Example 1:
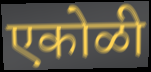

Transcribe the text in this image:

एकोळी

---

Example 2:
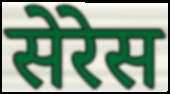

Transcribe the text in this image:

सेरेस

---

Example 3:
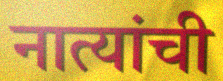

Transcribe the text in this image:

नात्यांची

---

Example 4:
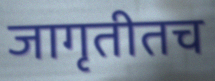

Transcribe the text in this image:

जागृतीतच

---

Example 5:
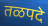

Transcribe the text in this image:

तळपदे